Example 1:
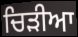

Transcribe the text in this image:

ਚਿੜੀਆ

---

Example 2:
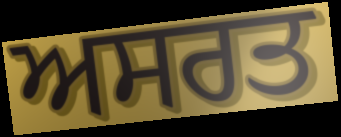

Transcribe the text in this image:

ਅਸਰਤ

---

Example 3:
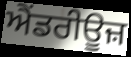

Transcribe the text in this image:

ਐਂਡਰੀਊਜ਼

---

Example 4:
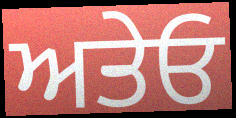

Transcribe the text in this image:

ਅਤੇਓ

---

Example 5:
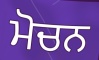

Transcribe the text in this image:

ਮੋਚਨ